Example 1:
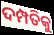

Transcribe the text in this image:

ଦମ୍ପତିକୁ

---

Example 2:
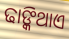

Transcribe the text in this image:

ଢାଙ୍କିଥାଏ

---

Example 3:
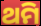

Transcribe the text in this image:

ଥମି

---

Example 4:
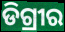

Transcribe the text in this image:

ଡିଗ୍ରୀର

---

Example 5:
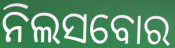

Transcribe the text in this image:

ନିଲସବୋର